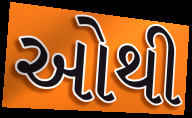
ઓથી